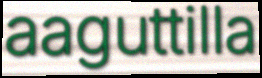
aaguttilla